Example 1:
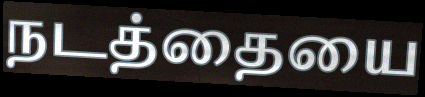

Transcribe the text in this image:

நடத்தையை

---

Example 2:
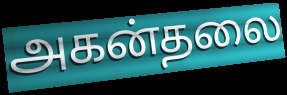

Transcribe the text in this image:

அகன்தலை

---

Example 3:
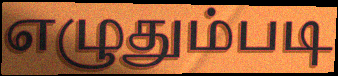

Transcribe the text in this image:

எழுதும்படி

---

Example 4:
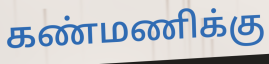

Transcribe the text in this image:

கண்மணிக்கு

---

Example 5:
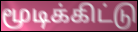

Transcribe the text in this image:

மூடிக்கிட்டு